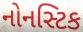
નોનસ્ટિક